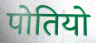
पोतियो